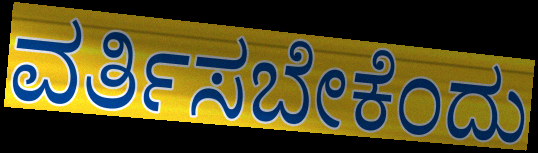
ವರ್ತಿಸಬೇಕೆಂದು